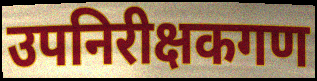
उपनिरीक्षकगण